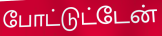
போட்டுட்டேன்